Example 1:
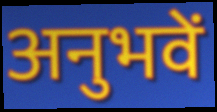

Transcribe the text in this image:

अनुभवें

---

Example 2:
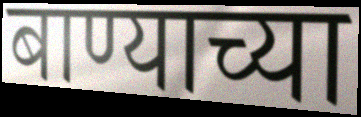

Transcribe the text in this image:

बाण्याच्या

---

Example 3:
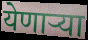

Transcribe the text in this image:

येणार्‍या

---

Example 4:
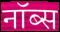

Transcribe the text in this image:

नॉब्स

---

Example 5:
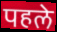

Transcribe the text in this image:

पहले